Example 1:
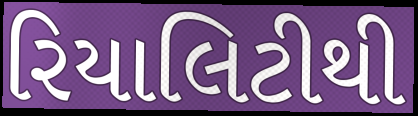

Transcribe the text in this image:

રિયાલિટીથી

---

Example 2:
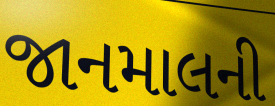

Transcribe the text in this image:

જાનમાલની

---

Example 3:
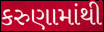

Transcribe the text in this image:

કરુણામાંથી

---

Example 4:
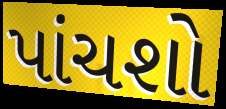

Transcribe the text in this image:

પાંચશો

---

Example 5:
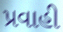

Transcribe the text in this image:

પ્રવાહી